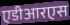
एडीआरएस